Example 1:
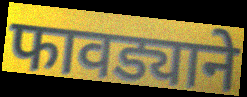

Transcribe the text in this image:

फावड्याने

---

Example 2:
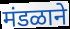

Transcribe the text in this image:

मंडळाने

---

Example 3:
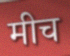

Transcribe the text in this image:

मीच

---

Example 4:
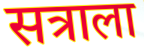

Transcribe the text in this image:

सत्राला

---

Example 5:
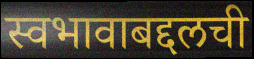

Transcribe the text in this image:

स्वभावाबद्दलची